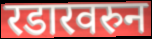
रडारवरुन